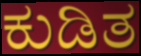
ಕುಡಿತ